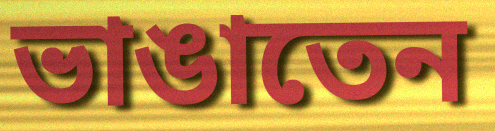
ভাঙাতেন